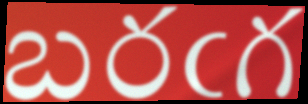
బరఁగ